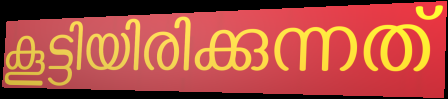
കൂട്ടിയിരിക്കുന്നത്